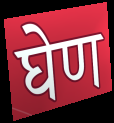
घेण